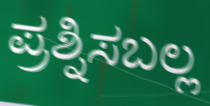
ಪ್ರಶ್ನಿಸಬಲ್ಲ